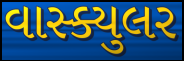
વાસ્ક્યુલર